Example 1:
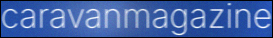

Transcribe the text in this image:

caravanmagazine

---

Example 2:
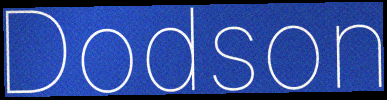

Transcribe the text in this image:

Dodson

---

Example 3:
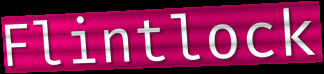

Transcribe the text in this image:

Flintlock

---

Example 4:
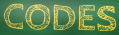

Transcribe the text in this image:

CODES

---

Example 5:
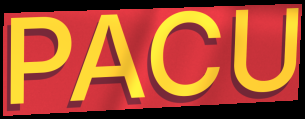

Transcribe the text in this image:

PACU